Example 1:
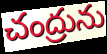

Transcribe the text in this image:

చంద్రును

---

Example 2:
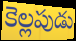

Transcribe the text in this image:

కెల్లపుడు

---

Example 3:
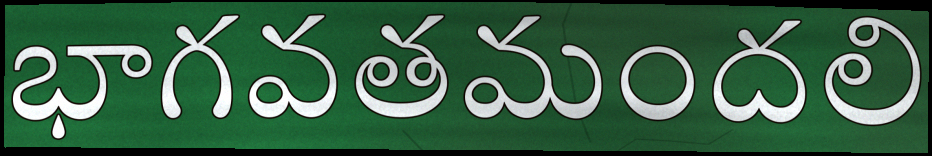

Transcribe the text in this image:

భాగవతమందలి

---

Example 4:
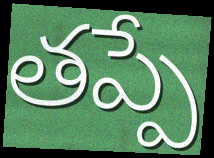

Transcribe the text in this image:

తప్పే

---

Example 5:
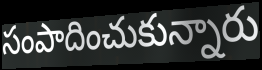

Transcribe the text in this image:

సంపాదించుకున్నారు